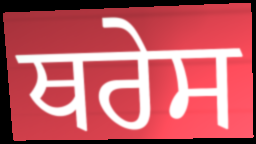
ਥਰੇਸ